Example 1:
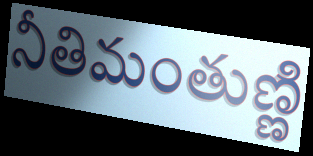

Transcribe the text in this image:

నీతిమంతుణ్ణి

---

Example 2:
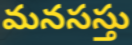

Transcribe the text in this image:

మనసస్తు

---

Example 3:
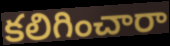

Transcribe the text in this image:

కలిగించారా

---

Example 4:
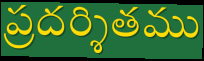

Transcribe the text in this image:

ప్రదర్శితము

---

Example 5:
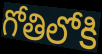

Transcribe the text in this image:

గోతిలోకి